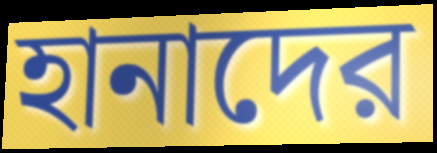
হানাদের